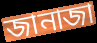
জানাজা